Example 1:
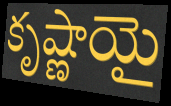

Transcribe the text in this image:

కృష్ణాయై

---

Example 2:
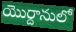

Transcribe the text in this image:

యొర్దానులో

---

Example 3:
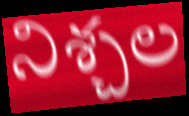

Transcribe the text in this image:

నిశ్చల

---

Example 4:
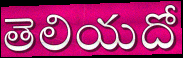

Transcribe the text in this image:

తెలియదో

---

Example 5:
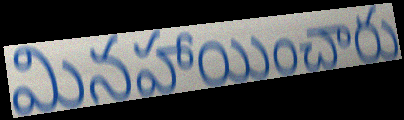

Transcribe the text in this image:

మినహాయించారు